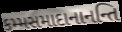
કમ્મસમાદાનાનન્તિ